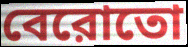
বেরোতো